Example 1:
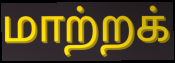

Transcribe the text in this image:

மாற்றக்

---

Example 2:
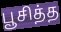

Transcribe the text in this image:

பூசித்த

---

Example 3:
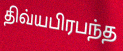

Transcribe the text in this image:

திவ்யபிரபந்த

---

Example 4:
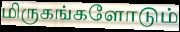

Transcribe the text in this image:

மிருகங்களோடும்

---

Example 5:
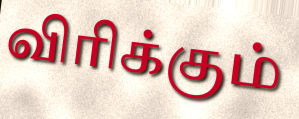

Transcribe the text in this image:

விரிக்கும்